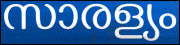
സാരള്യം